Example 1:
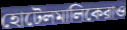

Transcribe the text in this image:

হোটেলমালিকেরাও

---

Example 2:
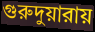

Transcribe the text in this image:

গুরুদুয়ারায়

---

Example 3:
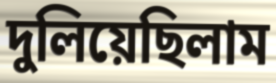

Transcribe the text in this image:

দুলিয়েছিলাম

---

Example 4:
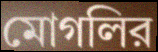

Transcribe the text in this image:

মোগলির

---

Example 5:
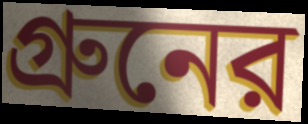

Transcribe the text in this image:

গ্রুনের